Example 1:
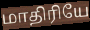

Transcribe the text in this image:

மாதிரியே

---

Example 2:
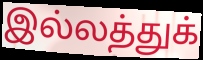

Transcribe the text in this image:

இல்லத்துக்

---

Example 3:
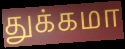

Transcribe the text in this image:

துக்கமா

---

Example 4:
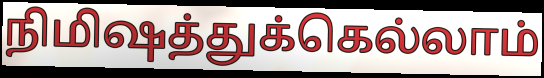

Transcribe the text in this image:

நிமிஷத்துக்கெல்லாம்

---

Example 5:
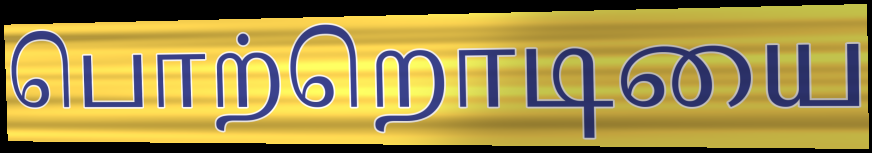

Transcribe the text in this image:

பொற்றொடியை